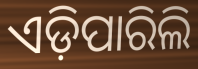
ଏଡ଼ିପାରିଲି